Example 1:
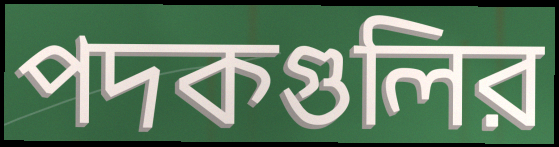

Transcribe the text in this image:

পদকগুলির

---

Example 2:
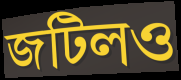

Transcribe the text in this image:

জটিলও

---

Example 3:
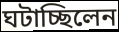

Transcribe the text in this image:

ঘটাচ্ছিলেন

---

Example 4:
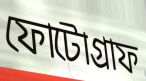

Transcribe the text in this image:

ফোটোগ্রাফ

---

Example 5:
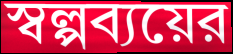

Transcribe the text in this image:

স্বল্পব্যয়ের